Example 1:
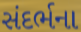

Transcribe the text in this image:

સંદર્ભના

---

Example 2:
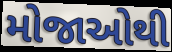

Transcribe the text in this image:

મોજાઓથી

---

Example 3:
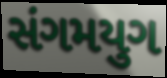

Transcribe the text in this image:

સંગમયુગ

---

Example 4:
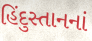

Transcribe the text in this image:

હિંદુસ્તાનનાં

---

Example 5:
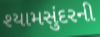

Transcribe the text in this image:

શ્યામસુંદરની